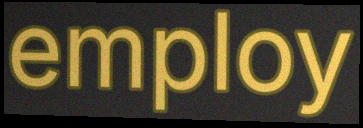
employ